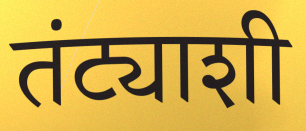
तंट्याशी